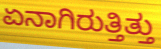
ಏನಾಗಿರುತ್ತಿತ್ತು